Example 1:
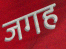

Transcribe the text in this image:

जगह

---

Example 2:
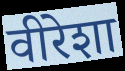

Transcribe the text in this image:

वीरेशा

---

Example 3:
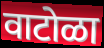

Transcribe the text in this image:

वाटोळा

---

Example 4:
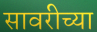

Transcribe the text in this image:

सावरीच्या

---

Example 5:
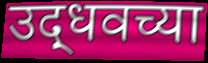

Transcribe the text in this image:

उद्धवच्या